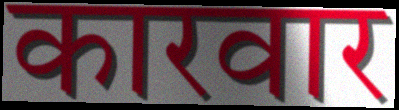
कारवार